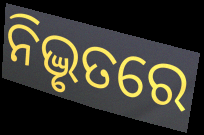
ନିଦ୍ଭୃତରେ